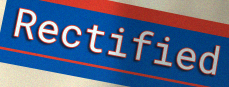
Rectified